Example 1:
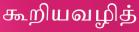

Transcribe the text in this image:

கூறியவழித்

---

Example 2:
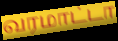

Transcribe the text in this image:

வரமாட்டா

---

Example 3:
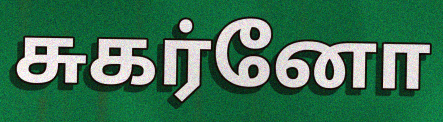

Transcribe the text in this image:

சுகர்னோ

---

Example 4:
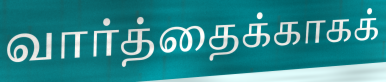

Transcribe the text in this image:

வார்த்தைக்காகக்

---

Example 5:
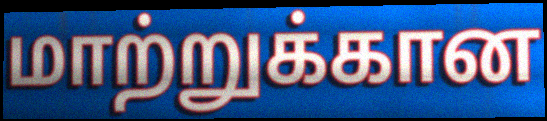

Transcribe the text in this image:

மாற்றுக்கான